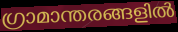
ഗ്രാമാന്തരങ്ങളിൽ